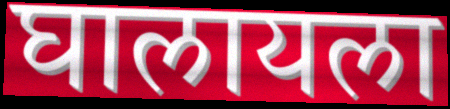
घालायला